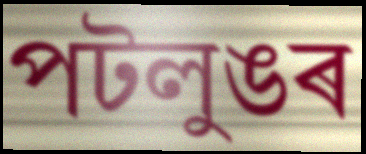
পটলুঙৰ